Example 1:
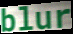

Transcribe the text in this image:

blur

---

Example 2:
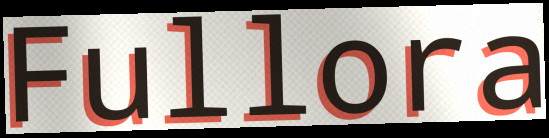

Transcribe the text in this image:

Fullora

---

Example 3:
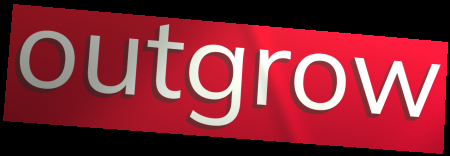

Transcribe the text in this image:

outgrow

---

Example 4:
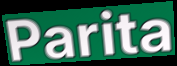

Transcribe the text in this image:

Parita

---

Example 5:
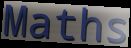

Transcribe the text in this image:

Maths